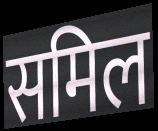
समिल